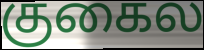
குகைல